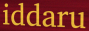
iddaru